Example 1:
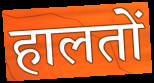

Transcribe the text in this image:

हालतों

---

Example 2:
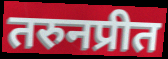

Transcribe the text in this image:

तरुनप्रीत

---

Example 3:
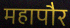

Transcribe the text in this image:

महापौर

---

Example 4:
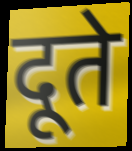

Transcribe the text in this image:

दूते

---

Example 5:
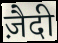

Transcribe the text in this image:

ज़ैदी